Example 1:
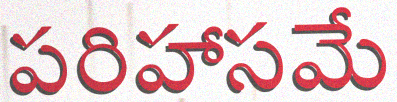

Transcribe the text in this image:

పరిహాసమే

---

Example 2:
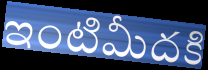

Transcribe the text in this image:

ఇంటిమీదకి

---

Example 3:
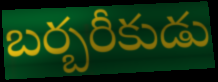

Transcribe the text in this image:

బర్బరీకుడు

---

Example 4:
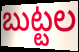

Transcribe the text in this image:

బుట్టల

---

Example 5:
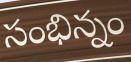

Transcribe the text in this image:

సంభిన్నం